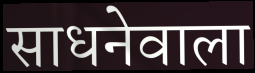
साधनेवाला